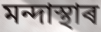
মন্দাস্থাৰ